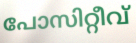
പോസിറ്റീവ്